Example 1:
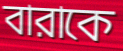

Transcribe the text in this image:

বারাকে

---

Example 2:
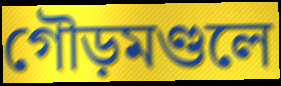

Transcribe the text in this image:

গৌড়মণ্ডলে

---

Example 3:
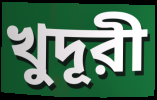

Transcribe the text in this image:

খুদূরী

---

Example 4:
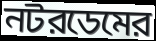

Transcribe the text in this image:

নটরডেমের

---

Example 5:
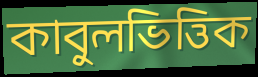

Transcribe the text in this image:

কাবুলভিত্তিক